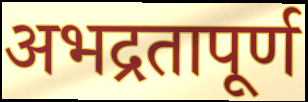
अभद्रतापूर्ण